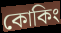
কোকিং